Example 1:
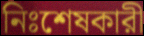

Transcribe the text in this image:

নিঃশেষকারী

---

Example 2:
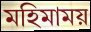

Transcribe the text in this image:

মহিমাময়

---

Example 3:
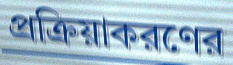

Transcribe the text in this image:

প্রক্রিয়াকরণের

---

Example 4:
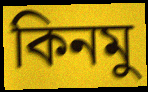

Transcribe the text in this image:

কিনমু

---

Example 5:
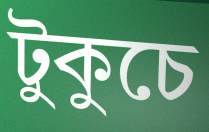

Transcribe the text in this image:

টুকুচে